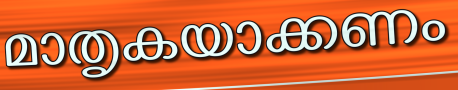
മാതൃകയാക്കണം